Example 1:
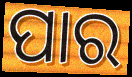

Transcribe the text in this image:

ପାର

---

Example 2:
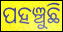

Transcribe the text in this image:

ପହଞ୍ଚୁଛି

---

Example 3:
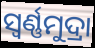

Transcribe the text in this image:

ସ୍ୱର୍ଣ୍ଣମୁଦ୍ରା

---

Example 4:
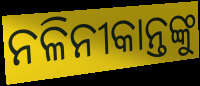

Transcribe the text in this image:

ନଳିନୀକାନ୍ତଙ୍କୁ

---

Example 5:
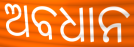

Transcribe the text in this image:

ଅବଧାନ